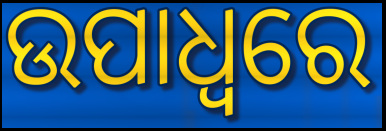
ଉପାଧ୍ଵରେ